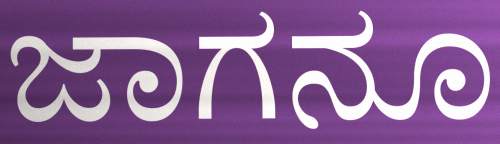
ಜಾಗನೂ